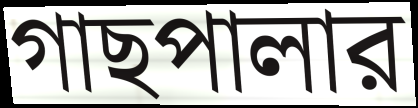
গাছপালার